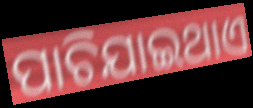
ପାଚିଯାଇଥାଏ